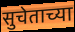
सुचेताच्या